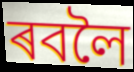
ৰবলৈ